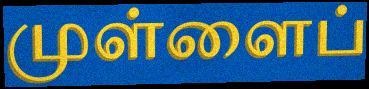
முள்ளைப்